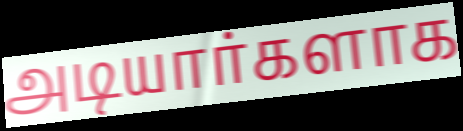
அடியார்களாக